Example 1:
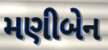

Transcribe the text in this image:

મણીબેન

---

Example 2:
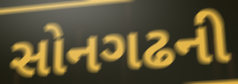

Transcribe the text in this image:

સોનગઢની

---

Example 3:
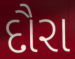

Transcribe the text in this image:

દૌરા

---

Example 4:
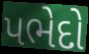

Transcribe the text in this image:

પભેદો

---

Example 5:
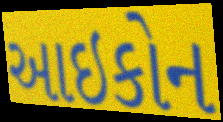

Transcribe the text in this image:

આઇકોન